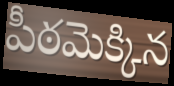
పీఠమెక్కిన